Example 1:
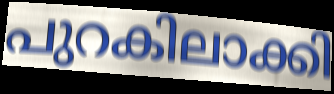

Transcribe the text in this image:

പുറകിലാക്കി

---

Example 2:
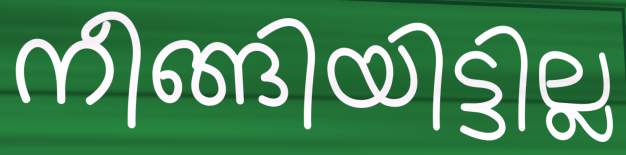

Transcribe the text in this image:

നീങ്ങിയിട്ടില്ല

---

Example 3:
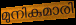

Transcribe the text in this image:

മുനികുമാരി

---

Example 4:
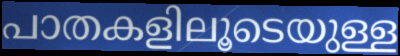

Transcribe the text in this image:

പാതകളിലൂടെയുള്ള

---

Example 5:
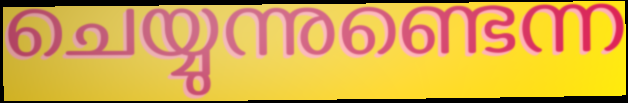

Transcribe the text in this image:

ചെയ്യുന്നുണ്ടെന്ന